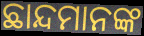
ଛାନ୍ଦମାନଙ୍କ